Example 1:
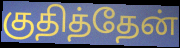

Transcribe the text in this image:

குதித்தேன்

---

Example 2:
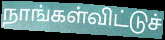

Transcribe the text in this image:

நாங்கள்விட்டுச்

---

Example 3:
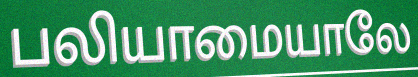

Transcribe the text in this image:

பலியாமையாலே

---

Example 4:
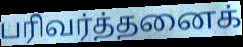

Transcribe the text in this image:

பரிவர்த்தனைக்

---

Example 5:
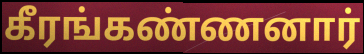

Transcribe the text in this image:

கீரங்கண்ணனார்